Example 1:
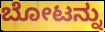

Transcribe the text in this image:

ಬೋಟನ್ನು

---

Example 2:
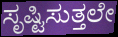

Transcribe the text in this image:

ಸೃಷ್ಟಿಸುತ್ತಲೇ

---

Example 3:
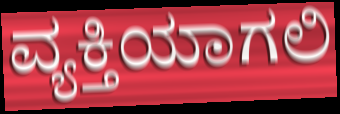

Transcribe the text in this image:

ವ್ಯಕ್ತಿಯಾಗಲಿ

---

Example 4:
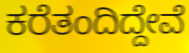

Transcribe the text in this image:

ಕರೆತಂದಿದ್ದೇವೆ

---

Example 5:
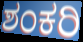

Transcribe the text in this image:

ಶಂಕರಿ